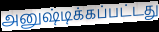
அனுஷ்டிக்கப்பட்டது